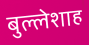
बुल्लेशाह